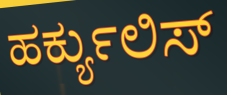
ಹರ್ಕ್ಯುಲಿಸ್